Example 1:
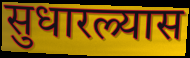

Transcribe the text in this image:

सुधारल्यास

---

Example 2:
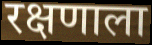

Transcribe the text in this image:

रक्षणाला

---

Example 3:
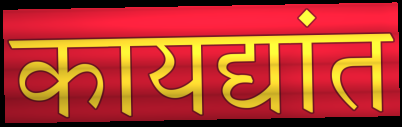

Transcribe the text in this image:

कायद्यांत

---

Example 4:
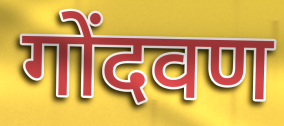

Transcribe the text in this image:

गोंदवण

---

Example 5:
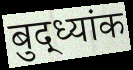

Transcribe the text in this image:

बुद्ध्यांक